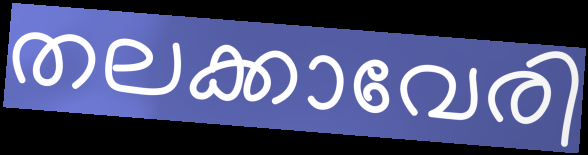
തലക്കാവേരി